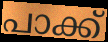
പാക്ക്